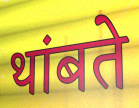
थांबते